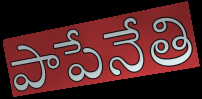
పాపేనేతి